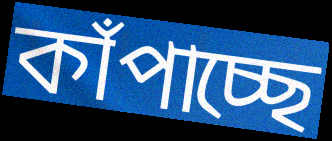
কাঁপাচ্ছে